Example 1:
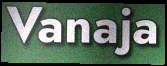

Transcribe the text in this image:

Vanaja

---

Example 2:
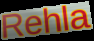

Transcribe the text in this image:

Rehla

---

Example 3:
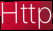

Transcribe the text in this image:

Http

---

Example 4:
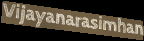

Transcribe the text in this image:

Vijayanarasimhan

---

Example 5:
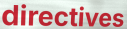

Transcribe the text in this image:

directives